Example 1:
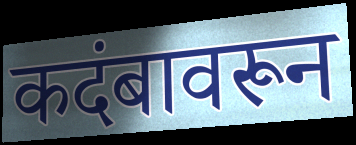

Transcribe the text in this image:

कदंबावरून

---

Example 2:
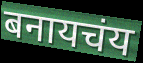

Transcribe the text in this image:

बनायचंय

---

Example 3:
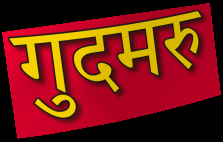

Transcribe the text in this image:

गुदमरु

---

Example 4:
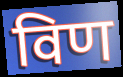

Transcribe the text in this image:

विण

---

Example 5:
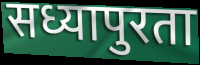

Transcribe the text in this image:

सध्यापुरता